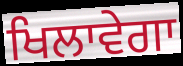
ਖਿਲਾਵੇਗਾ